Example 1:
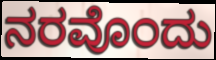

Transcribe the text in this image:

ನರವೊಂದು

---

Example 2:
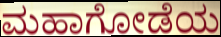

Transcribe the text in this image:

ಮಹಾಗೋಡೆಯ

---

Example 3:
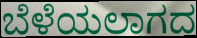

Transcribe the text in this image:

ಬೆಳೆಯಲಾಗದ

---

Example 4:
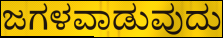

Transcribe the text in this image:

ಜಗಳವಾಡುವುದು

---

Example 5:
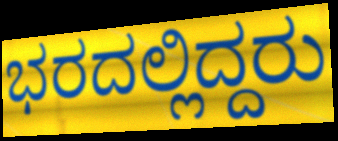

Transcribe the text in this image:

ಭರದಲ್ಲಿದ್ದರು